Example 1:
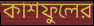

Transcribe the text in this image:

কাশফুলের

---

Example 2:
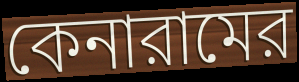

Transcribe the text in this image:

কেনারামের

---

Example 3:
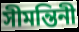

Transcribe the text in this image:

সীমন্তিনী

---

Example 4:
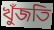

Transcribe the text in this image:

খুঁজতি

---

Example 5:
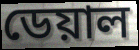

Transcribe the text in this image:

ডেয়াল